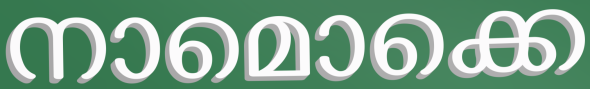
നാമൊക്കെ